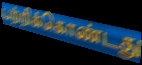
பற்றிக்கொண்டது